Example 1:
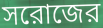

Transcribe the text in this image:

সরোজের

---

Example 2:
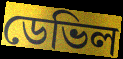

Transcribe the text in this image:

ডেভিল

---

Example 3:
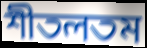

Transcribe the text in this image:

শীতলতম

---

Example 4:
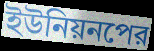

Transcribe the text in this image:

ইউনিয়নপের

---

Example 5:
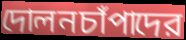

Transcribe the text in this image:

দোলনচাঁপাদের